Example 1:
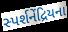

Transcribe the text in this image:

સ્પર્શનેંદ્રિયના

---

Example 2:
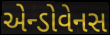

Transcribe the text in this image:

એન્ડોવેનસ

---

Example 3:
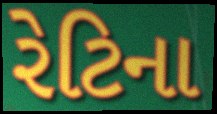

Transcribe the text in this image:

રેટિના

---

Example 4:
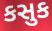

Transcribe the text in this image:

કસુક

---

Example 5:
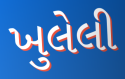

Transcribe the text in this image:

ખુલેલી